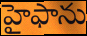
హైఫాను